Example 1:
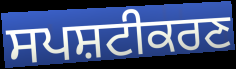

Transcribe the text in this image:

ਸਪਸ਼ਟੀਕਰਣ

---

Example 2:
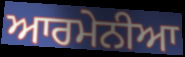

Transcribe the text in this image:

ਆਰਮੇਨੀਆ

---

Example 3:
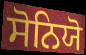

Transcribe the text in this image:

ਸੋਨਿਯੋ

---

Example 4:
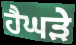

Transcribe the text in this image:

ਹੈਘੜੇ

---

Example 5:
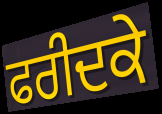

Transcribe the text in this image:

ਫਰੀਦਕੇ